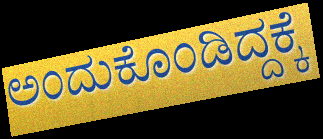
ಅಂದುಕೊಂಡಿದ್ದಕ್ಕೆ